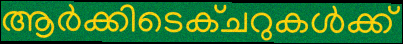
ആർക്കിടെക്ചറുകൾക്ക്